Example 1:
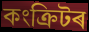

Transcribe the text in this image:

কংক্ৰিটৰ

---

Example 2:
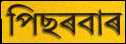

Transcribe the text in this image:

পিছৰবাৰ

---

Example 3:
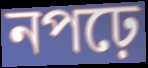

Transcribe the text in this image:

নপঢ়ে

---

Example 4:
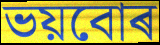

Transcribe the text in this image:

ভয়বোৰ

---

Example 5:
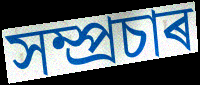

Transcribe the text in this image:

সম্প্ৰচাৰ